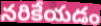
నరికేయడం